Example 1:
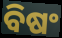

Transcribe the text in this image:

ବିଷଂ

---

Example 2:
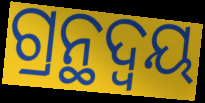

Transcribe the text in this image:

ଗ୍ରନ୍ଥଦ୍ଵୟ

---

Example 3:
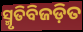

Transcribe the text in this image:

ସ୍ମୃତିବିଜଡ଼ିତ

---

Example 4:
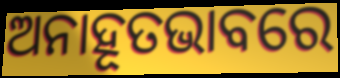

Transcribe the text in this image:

ଅନାହୂତଭାବରେ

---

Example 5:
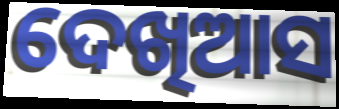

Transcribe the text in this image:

ଦେଖିଆସ